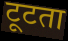
टूटता